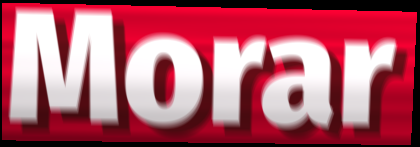
Morar